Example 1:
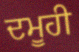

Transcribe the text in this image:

ਦਮੂਹੀ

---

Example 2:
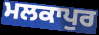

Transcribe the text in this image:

ਮਲਕਾਪੁਰ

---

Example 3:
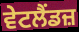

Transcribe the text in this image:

ਵੇਟਲੈਂਡਜ਼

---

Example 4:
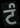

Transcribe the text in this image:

ਟੰ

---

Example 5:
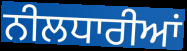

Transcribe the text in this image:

ਨੀਲਧਾਰੀਆਂ